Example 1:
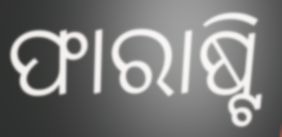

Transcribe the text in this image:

ଫାରାଷ୍ଟି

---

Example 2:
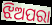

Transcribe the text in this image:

ଝିଅପରା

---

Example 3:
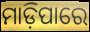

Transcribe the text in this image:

ମାଡ଼ିପାରେ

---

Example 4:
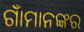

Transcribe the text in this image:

ଗାଁମାନଙ୍କର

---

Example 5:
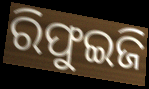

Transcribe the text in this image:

ରିଫୁଇଜି